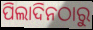
ପିଲାଦିନଠାରୁ